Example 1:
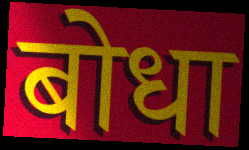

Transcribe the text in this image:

बोधा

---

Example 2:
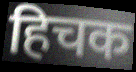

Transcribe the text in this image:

हिचक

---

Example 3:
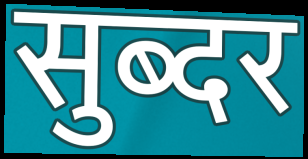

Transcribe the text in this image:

सुब्दर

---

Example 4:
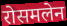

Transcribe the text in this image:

रोसमलेन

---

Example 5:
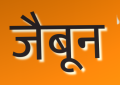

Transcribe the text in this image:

जैबून